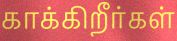
காக்கிறீர்கள்